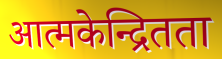
आत्मकेन्द्रितता